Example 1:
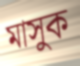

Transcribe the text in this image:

মাসুক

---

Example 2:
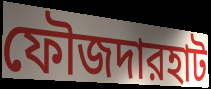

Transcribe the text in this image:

ফৌজদারহাট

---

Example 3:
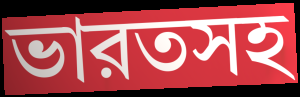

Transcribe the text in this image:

ভারতসহ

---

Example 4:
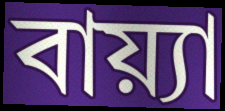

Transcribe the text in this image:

বায়্যা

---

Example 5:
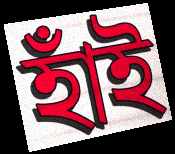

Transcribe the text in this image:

হাঁই